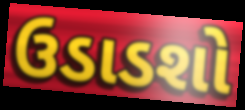
ઉડાડશો